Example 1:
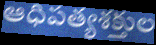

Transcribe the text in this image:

ఆధిపత్యశక్తుల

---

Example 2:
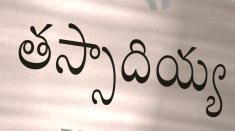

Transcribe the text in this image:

తస్సాదియ్య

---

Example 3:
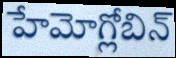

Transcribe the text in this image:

హేమోగ్లోబిన్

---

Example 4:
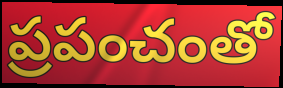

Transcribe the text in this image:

ప్రపంచంతో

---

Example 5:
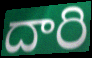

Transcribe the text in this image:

దారి